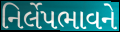
નિર્લેપભાવને